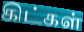
கிட்கள்